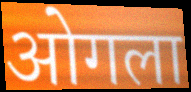
ओगला